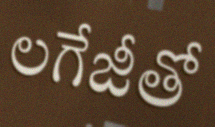
లగేజీతో